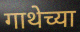
गाथेच्या